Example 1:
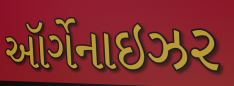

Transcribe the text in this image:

ઑર્ગેનાઇઝર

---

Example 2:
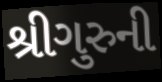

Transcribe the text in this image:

શ્રીગુરુની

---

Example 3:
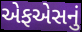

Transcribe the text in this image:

એફએસનું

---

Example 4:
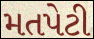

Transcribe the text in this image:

મતપેટી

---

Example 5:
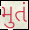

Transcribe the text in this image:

મુતં